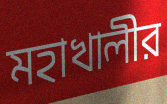
মহাখালীর